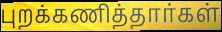
புறக்கணித்தார்கள்